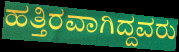
ಹತ್ತಿರವಾಗಿದ್ದವರು